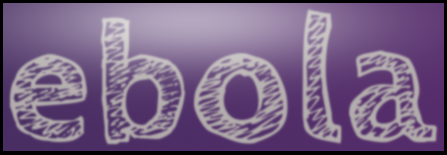
ebola